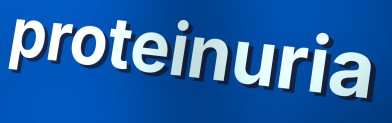
proteinuria